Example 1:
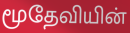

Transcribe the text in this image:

மூதேவியின்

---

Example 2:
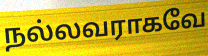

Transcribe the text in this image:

நல்லவராகவே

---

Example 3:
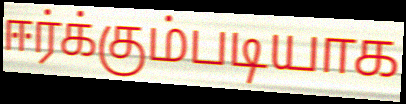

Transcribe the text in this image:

ஈர்க்கும்படியாக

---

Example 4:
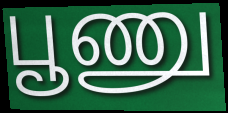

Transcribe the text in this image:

பூணு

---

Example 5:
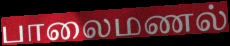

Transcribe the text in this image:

பாலைமணல்